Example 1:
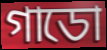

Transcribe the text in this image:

গাডো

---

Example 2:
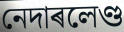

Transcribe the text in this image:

নেদাৰলেণ্ড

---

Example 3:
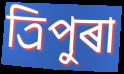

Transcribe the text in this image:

ত্ৰিপুৰা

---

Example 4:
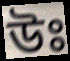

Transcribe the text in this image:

উঃ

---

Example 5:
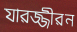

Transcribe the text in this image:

যাৱজ্জীৱন